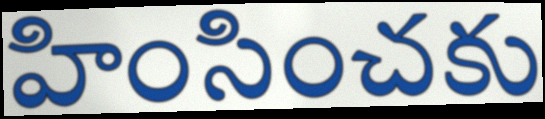
హింసించకు